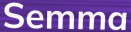
Semma